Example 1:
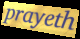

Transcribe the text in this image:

prayeth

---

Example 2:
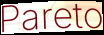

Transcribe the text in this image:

Pareto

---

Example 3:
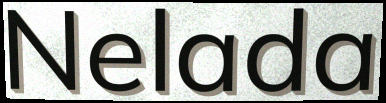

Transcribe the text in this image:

Nelada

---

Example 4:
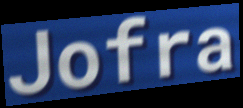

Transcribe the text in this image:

Jofra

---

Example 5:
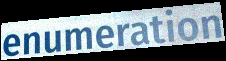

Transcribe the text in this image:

enumeration